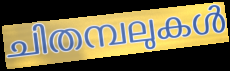
ചിതമ്പലുകൾ